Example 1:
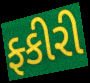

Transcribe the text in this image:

ફ્કીરી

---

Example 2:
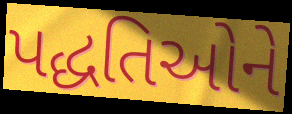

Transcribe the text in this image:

પદ્ધતિઓને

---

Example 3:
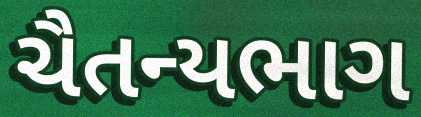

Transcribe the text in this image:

ચૈતન્યભાગ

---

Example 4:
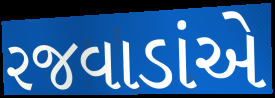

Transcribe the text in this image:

રજવાડાંએ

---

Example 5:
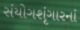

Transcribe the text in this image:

સંયોગશૃંગારનાં